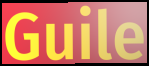
Guile